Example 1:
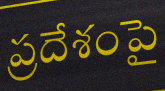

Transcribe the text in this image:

ప్రదేశంపై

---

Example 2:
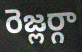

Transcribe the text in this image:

రెజ్లర్గా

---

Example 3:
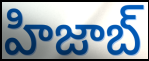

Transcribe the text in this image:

హిజాబ్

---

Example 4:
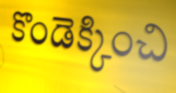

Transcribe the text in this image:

కొండెక్కించి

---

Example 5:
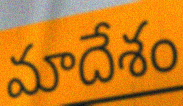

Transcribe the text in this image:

మాదేశం